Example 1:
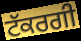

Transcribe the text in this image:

ਟੱਕਰਗੀ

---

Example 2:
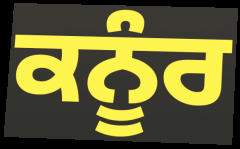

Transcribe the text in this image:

ਕਨੂੰਰ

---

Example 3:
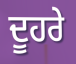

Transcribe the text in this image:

ਦੂਹਰੇ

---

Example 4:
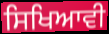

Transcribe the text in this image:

ਸਿਖਿਆਵੀ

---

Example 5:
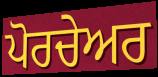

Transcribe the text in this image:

ਪੋਰਚੇਅਰ